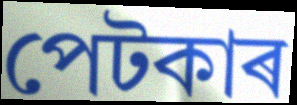
পেটকাৰ